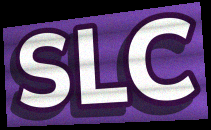
SLC